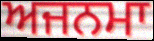
ਅਜਨਮਾ